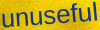
unuseful